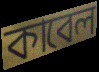
কাবেল